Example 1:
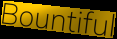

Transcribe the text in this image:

Bountiful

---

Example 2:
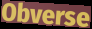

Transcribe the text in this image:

Obverse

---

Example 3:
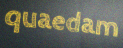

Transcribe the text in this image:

quaedam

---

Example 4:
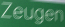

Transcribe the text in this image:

Zeugen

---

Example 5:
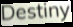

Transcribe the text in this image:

Destiny